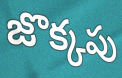
జొక్కపు